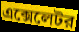
এক্সেলেটর